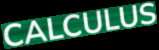
CALCULUS